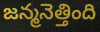
జన్మనెత్తింది